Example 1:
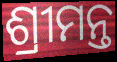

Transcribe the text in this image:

ଶ୍ରୀମନ୍ତ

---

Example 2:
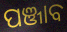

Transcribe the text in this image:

ପଞ୍ଜାବ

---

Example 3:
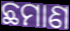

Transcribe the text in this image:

ଛମାଣ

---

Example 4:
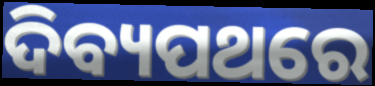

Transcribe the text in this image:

ଦିବ୍ୟପଥରେ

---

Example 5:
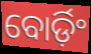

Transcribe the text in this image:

ବୋର୍ଡ଼ିଂ